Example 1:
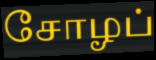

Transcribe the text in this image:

சோழப்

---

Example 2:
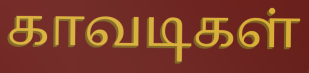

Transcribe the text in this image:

காவடிகள்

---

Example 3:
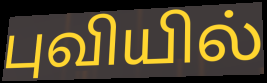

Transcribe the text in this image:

புவியில்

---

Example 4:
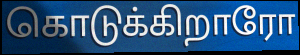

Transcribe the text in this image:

கொடுக்கிறாரோ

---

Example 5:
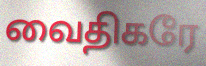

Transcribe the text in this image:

வைதிகரே